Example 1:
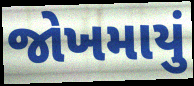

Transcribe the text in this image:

જોખમાયું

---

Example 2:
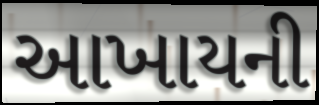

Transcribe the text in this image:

આખાયની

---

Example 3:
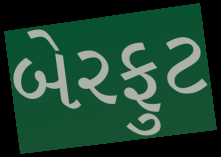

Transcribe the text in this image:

બેરફુટ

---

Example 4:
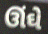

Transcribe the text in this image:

ઊંઘે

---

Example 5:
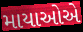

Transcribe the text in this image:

માયાઓએ